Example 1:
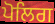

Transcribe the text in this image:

ਪੋਲਿਗ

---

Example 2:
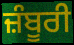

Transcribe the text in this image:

ਜ਼ੰਬੂਰੀ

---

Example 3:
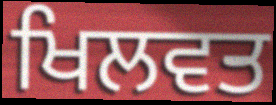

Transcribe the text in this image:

ਖਿਲਵਤ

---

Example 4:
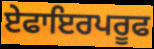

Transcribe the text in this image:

ਏਫਾਇਰਪਰੂਫ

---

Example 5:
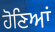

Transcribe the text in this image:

ਹੋਣਿਆਂ